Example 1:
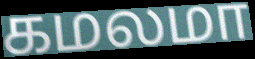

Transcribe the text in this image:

கமலமா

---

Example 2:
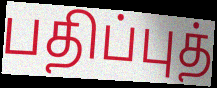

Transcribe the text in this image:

பதிப்புத்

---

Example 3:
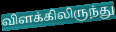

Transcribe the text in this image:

விளக்கிலிருந்து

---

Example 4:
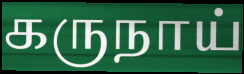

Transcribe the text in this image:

கருநாய்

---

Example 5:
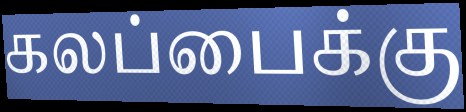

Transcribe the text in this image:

கலப்பைக்கு